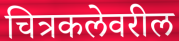
चित्रकलेवरील